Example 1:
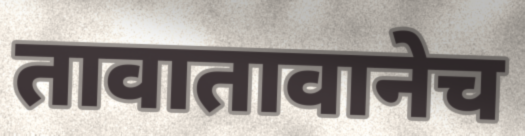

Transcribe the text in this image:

तावातावानेच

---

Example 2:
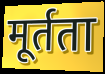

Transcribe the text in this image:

मूर्तता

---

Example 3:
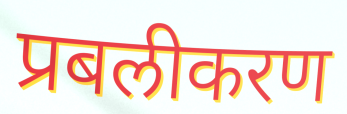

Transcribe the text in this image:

प्रबलीकरण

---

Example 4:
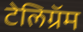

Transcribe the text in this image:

टेलिग्रॅम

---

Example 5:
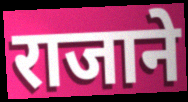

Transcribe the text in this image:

राजाने